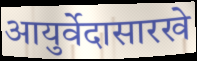
आयुर्वेदासारखे